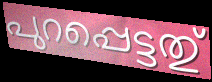
പുറപ്പെട്ടതു്